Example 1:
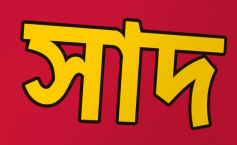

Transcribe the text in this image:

সাদ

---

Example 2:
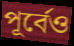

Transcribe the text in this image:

পূৰ্বেও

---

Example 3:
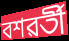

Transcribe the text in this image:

বশৱৰ্তী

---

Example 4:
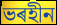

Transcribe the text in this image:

ভৰহীন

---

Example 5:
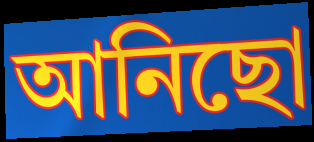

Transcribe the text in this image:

আনিছো